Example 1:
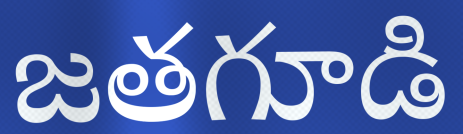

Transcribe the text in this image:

జతగూడి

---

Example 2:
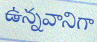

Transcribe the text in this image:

ఉన్నవానిగా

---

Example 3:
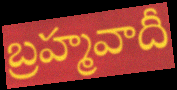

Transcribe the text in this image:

బ్రహ్మవాదీ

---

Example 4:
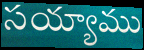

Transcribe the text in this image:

సయ్యాము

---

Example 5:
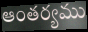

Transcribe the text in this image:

ఆంతర్యము